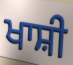
ਖਾਸ਼ੀ